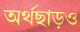
অর্থছাড়ও